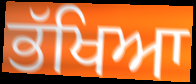
ਭੱਖਿਆ